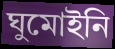
ঘুমোইনি